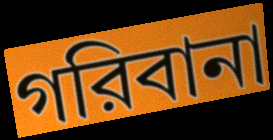
গরিবানা